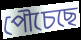
পৌচেছে